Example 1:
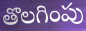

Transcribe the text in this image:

తొలగింపు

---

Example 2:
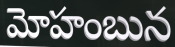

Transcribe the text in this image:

మోహంబున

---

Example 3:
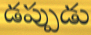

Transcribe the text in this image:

డప్పుడు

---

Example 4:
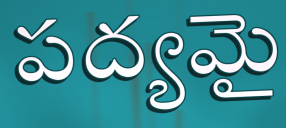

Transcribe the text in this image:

పద్యమై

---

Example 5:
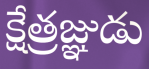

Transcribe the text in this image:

క్షేత్రజ్ఞుడు